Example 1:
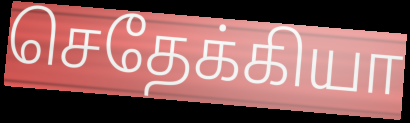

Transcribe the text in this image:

செதேக்கியா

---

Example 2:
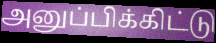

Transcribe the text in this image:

அனுப்பிக்கிட்டு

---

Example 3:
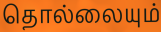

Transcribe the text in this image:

தொல்லையும்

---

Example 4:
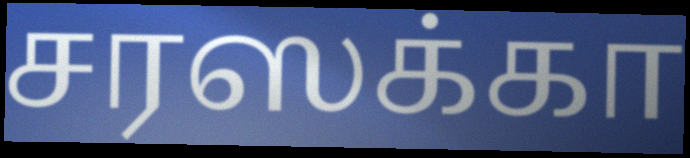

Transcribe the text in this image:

சரஸக்கா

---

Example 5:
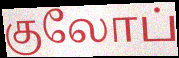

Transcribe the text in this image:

குலோப்